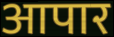
आपार